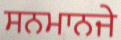
ਸਨਮਾਨਜੇ